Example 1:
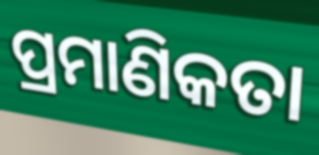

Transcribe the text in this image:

ପ୍ରମାଣିକତା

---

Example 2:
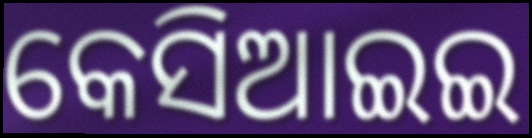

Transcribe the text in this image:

କେସିଆଇଇ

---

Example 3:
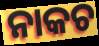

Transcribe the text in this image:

ନାକଚ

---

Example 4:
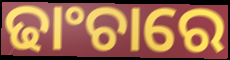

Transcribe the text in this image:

ଢାଂଚାରେ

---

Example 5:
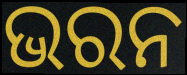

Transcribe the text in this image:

ଭରନ